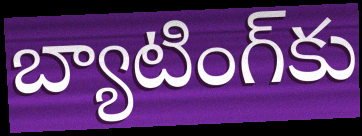
బ్యాటింగ్‌కు